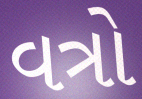
વત્રો